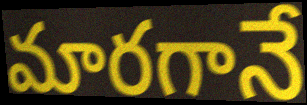
మారగానే